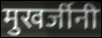
मुखर्जीनी